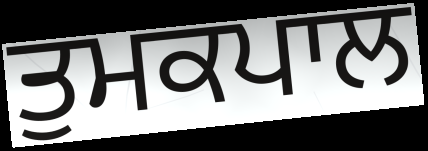
ਤੁਮਕਪਾਲ